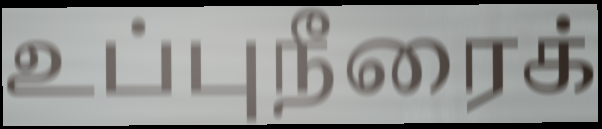
உப்புநீரைக்